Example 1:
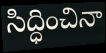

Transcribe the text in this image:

సిద్ధించినా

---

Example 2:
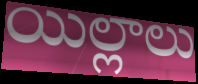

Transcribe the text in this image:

యిల్లాలు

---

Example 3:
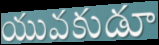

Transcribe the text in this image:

యువకుడూ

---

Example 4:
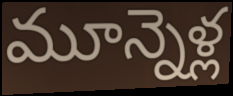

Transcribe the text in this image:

మూన్నెళ్ల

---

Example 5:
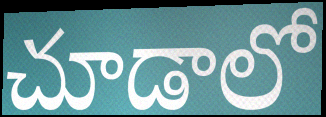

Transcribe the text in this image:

చూడాలో